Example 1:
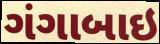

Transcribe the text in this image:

ગંગાબાઇ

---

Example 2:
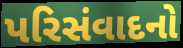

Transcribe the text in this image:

પરિસંવાદનો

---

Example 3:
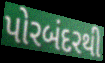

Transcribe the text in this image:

પોરબંદરથી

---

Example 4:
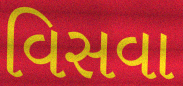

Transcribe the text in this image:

વિસવા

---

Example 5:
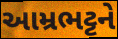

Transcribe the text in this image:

આમ્રભટ્ટને